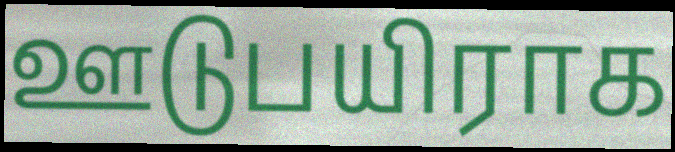
ஊடுபயிராக